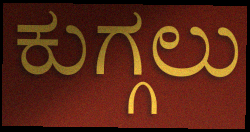
ಕುಗ್ಗಲು